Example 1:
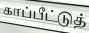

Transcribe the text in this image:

காப்பீட்டுத்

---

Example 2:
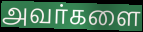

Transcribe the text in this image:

அவர்களை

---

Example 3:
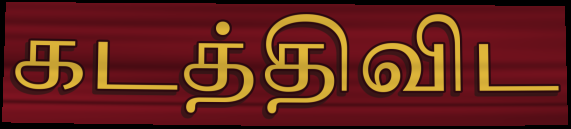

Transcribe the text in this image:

கடத்திவிட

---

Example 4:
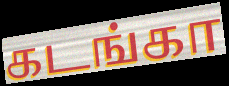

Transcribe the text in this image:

கடங்கா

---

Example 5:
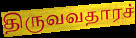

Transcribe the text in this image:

திருவவதாரச்